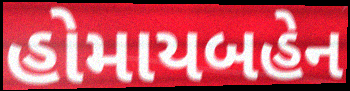
હોમાયબહેન